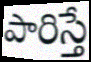
పారిస్తే